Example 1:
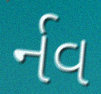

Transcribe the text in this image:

ર્નવ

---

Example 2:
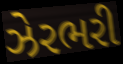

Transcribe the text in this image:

ઝેરભરી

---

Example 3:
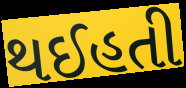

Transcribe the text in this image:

થઈહતી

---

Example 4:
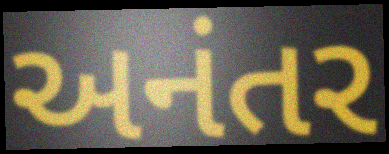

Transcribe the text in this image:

અનંતર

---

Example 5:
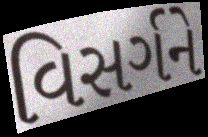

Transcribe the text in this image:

વિસર્ગને